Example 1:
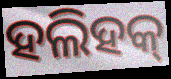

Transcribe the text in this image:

ହଲିହକ୍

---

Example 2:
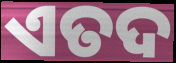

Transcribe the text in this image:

ଏତଦ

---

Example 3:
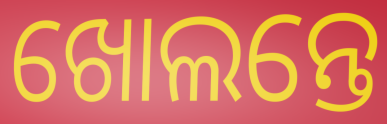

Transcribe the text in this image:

ଖୋଲନ୍ତେ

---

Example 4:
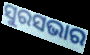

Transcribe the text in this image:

ସୁରସଭାର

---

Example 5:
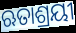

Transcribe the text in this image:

ଋତାଶ୍ରୟୀ